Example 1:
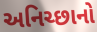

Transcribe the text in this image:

અનિચ્છાનો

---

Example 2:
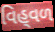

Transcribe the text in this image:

વિહ્‌વળ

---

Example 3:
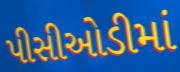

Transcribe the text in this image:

પીસીઓડીમાં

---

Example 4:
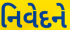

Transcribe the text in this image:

નિવેદને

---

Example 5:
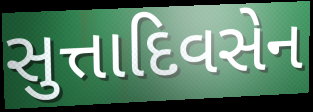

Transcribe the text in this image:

સુત્તાદિવસેન